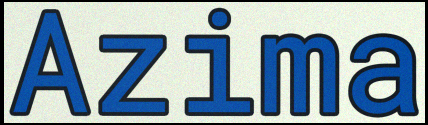
Azima